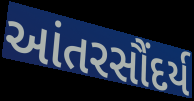
આંતરસૌંદર્ય